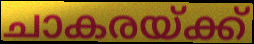
ചാകരയ്ക്ക്